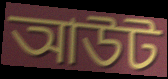
আউট